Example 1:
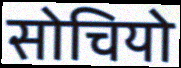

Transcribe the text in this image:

सोचियो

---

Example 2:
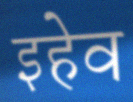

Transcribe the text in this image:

इहेव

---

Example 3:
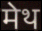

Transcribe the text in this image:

मेथ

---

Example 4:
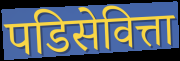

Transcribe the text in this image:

पडिसेवित्ता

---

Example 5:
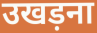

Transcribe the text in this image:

उखड़ना